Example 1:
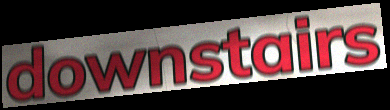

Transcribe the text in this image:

downstairs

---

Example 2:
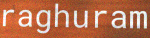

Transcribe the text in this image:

raghuram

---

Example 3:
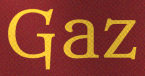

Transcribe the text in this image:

Gaz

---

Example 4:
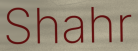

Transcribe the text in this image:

Shahr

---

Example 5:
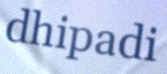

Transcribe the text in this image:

dhipadi